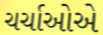
ચર્ચાઓએ